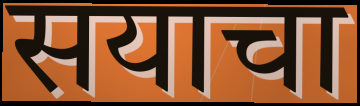
सयाचा